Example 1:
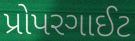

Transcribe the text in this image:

પ્રોપરગાઈટ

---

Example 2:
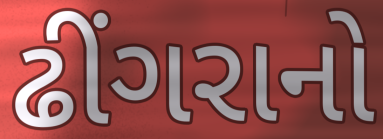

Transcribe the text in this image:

ઢીંગરાનો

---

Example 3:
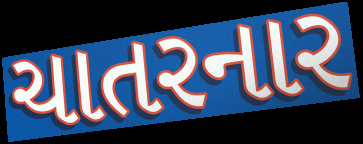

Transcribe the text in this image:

ચાતરનાર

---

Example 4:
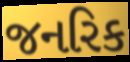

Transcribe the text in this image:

જનરિક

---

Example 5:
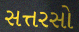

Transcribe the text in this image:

સત્તરસો